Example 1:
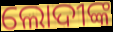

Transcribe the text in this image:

ଲୋଦୀଙ୍କ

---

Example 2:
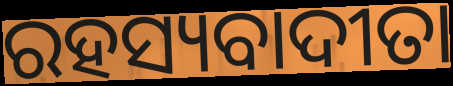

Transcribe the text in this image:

ରହସ୍ୟବାଦୀତା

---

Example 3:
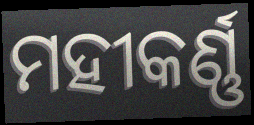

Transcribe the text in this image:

ମହୀକର୍ଣ୍ଣ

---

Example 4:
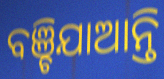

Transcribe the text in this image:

ବଞ୍ଚିଯାଆନ୍ତି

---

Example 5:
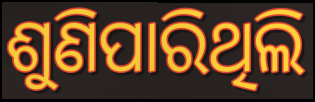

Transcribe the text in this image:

ଶୁଣିପାରିଥିଲି